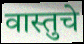
वास्तुचे